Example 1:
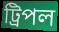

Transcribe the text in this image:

ট্রিপল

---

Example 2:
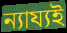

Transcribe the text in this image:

ন্যায্যই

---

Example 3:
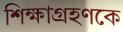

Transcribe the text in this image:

শিক্ষাগ্রহণকে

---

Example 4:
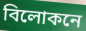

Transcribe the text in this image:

বিলোকনে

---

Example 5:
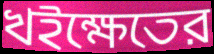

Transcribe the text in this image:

খইক্ষেতের